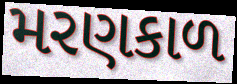
મરણકાળ